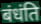
बंधंति